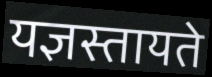
यज्ञस्तायते